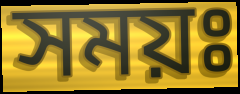
সময়ঃ